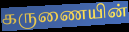
கருணையின்